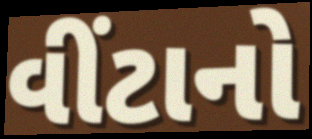
વીંટાનો